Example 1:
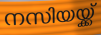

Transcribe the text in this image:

നസിയയ്ക്ക്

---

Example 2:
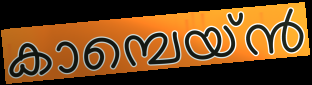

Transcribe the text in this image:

കാമ്പെയ്ൻ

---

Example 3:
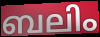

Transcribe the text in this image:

ബലിം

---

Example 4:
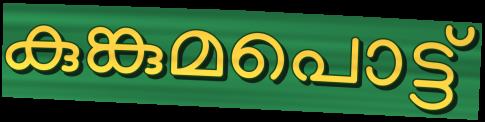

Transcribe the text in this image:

കുങ്കുമപൊട്ട്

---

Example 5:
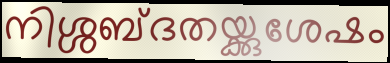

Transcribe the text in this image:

നിശ്ശബ്ദതയ്ക്കുശേഷം